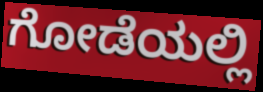
ಗೋಡೆಯಲ್ಲಿ